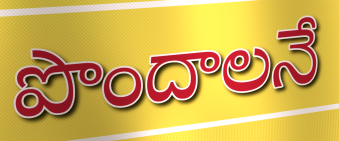
పొందాలనే